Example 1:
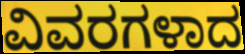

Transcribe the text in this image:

ವಿವರಗಳಾದ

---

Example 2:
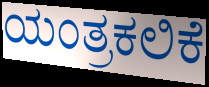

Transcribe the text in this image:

ಯಂತ್ರಕಲಿಕೆ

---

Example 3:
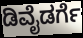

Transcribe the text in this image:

ಡಿವೈಡರ್ಗೆ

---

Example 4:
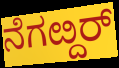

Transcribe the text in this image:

ನೆಗೞ್ದರ್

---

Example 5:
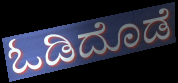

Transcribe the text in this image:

ಓಡಿದೊಡೆ